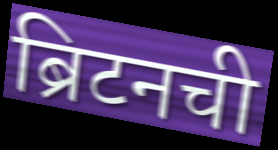
ब्रिटनची